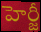
హెర్జీ